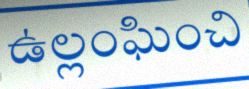
ఉల్లంఘించి